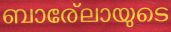
ബാര്ലോയുടെ